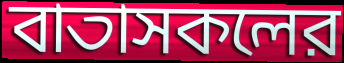
বাতাসকলের